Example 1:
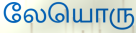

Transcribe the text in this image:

லேயொரு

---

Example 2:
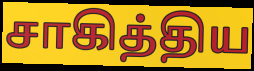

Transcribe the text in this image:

சாகித்திய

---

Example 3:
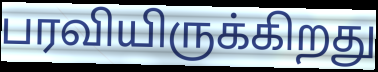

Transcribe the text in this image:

பரவியிருக்கிறது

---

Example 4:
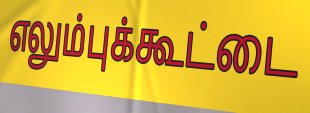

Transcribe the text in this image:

எலும்புக்கூட்டை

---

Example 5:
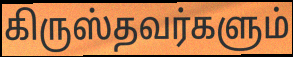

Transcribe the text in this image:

கிருஸ்தவர்களும்